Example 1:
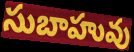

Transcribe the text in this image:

సుబాహువు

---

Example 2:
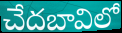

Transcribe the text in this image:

చేదబావిలో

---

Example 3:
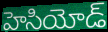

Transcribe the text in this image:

హెసియోడ్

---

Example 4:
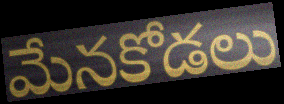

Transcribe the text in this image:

మేనకోడలు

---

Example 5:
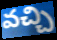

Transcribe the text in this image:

వచ్చి